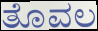
ತೊವಲ